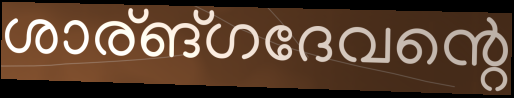
ശാര്ങ്ഗദേവന്റെ